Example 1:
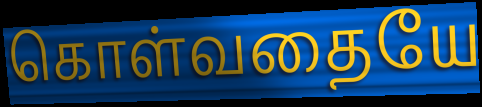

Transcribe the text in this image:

கொள்வதையே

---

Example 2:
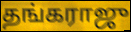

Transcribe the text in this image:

தங்கராஜு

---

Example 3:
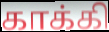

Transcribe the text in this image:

காக்கி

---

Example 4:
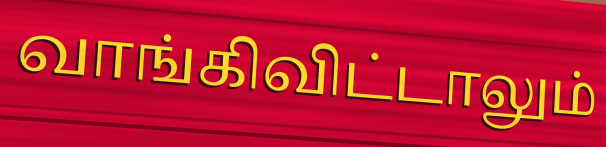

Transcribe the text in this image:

வாங்கிவிட்டாலும்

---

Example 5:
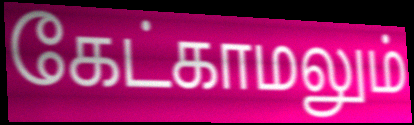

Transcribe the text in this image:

கேட்காமலும்